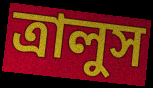
ত্রালুস